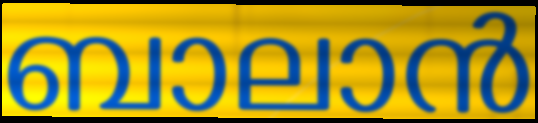
ബാലാൻ